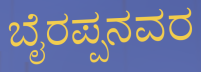
ಬೈರಪ್ಪನವರ